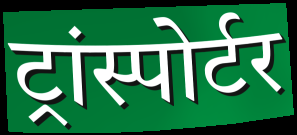
ट्रांस्पोर्टर